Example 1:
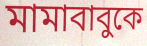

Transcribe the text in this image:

মামাবাবুকে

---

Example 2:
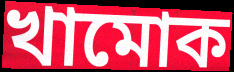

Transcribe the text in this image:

খামোক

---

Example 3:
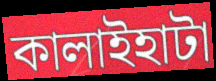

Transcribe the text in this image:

কালাইহাটা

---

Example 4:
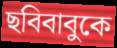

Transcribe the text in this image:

ছবিবাবুকে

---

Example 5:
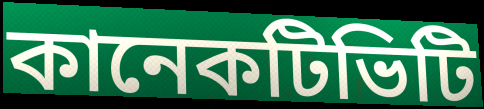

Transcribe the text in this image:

কানেকটিভিটি